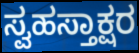
ಸ್ವಹಸ್ತಾಕ್ಷರ